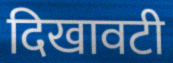
दिखावटी